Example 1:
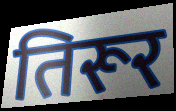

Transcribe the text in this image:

तिरूर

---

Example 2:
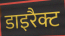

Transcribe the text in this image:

डाइरैक्ट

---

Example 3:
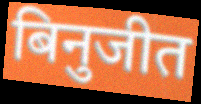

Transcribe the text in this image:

बिनुजीत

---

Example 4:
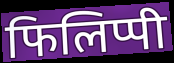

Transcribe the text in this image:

फिलिप्पी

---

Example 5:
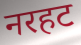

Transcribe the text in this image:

नरहट